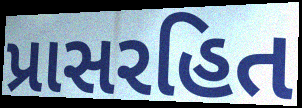
પ્રાસરહિત